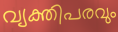
വ്യക്തിപരവും